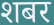
शबर